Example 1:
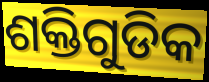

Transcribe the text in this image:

ଶକ୍ତିଗୁଡିକ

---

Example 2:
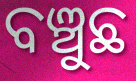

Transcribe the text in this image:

ବଞ୍ଚୁଛ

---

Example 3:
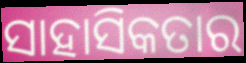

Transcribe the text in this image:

ସାହାସିକତାର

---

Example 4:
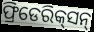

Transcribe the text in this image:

ଫ୍ରିଡେରିକ୍‌ସନ୍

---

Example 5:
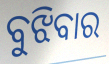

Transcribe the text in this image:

ବୁଝିବାର